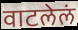
वाटलेलं